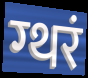
ग्थरं